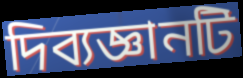
দিব্যজ্ঞানটি